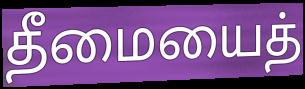
தீமையைத்